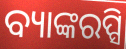
ବ୍ୟାଙ୍କରପ୍ସି